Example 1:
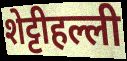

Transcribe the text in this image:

शेट्टीहल्ली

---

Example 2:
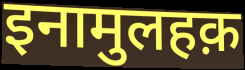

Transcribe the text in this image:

इनामुलहक़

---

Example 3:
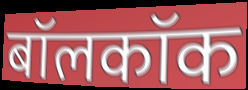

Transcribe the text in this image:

बॉलकॉक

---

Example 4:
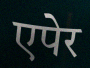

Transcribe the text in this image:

एपेर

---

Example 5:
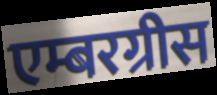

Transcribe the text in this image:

एम्बरग्रीस